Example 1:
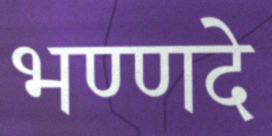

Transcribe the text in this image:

भण्णदे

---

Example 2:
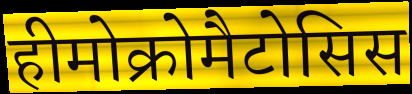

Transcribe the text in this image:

हीमोक्रोमैटोसिस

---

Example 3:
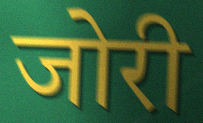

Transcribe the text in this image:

जोरी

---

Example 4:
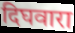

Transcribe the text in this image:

दिघवारा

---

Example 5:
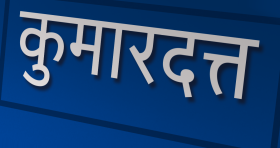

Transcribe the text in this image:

कुमारदत्त